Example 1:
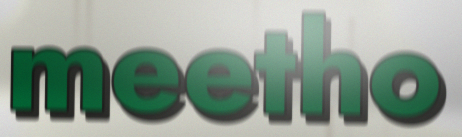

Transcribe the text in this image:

meetho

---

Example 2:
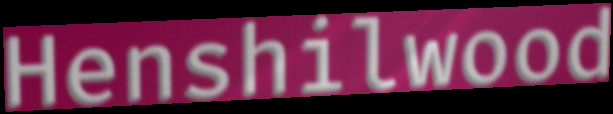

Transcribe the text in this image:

Henshilwood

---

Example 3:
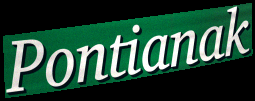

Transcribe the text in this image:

Pontianak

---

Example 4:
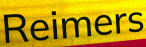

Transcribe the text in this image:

Reimers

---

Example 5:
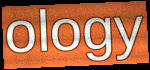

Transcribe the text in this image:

ology